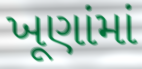
ખૂણાંમાં